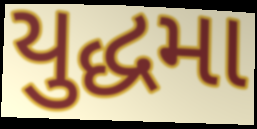
યુદ્ધમા